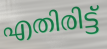
എതിരിട്ട്